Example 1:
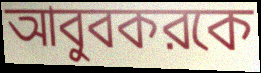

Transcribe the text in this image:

আবুবকরকে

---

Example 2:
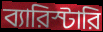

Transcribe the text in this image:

ব্যারিস্টারি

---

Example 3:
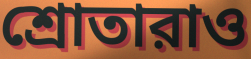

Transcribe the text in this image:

শ্রোতারাও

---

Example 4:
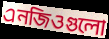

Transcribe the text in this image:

এনজিওগুলো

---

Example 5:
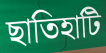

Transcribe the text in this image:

ছাতিহাটি